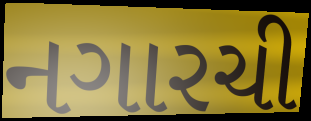
નગારચી